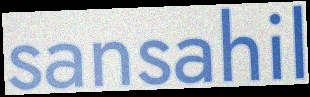
sansahil